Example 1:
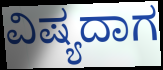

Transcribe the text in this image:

ವಿಷ್ಯದಾಗ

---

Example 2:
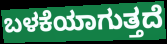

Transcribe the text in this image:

ಬಳಕೆಯಾಗುತ್ತದೆ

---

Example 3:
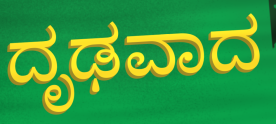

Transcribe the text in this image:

ದೃಢವಾದ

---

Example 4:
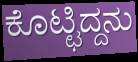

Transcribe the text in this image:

ಕೊಟ್ಟಿದ್ದನು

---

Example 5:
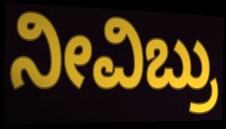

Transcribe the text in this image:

ನೀವಿಬ್ರು